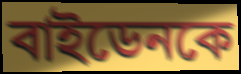
বাইডেনকে